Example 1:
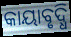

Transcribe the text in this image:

କାୟାବୃଦ୍ଧି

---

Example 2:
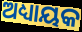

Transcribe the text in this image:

ଅଧ୍ୟାୟକ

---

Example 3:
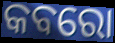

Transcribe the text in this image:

କବରୋ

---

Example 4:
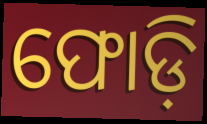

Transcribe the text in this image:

ଫୋଡ଼ି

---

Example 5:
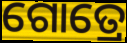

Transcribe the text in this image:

ଗୋତ୍ରେ